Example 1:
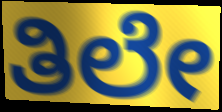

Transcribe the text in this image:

ತಿಲೇ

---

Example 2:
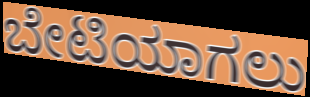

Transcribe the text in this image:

ಬೇಟಿಯಾಗಲು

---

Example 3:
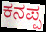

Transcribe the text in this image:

ಕನಪ್ಪ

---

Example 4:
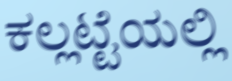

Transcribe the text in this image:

ಕಲ್ಲಟ್ಟೆಯಲ್ಲಿ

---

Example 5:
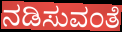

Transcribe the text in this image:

ನಡಿಸುವಂತೆ